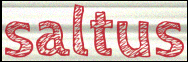
saltus